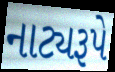
નાટ્યરૂપે